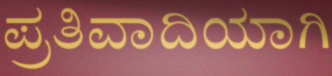
ಪ್ರತಿವಾದಿಯಾಗಿ